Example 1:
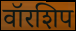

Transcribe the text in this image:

वॉरशिप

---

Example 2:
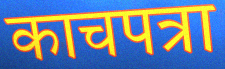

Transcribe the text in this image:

काचपत्रा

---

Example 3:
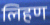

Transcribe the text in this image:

लिहण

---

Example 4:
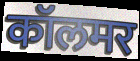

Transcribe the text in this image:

कॉलमर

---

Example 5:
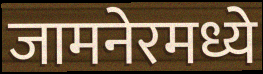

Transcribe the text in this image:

जामनेरमध्ये